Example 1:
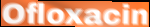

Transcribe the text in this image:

Ofloxacin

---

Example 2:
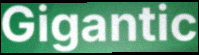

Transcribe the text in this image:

Gigantic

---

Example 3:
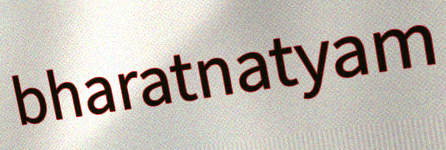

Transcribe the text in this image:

bharatnatyam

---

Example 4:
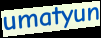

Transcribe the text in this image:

umatyun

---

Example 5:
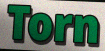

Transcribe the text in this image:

Torn